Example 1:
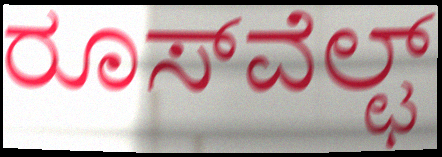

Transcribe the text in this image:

ರೂಸ್‍ವೆಲ್ಟ್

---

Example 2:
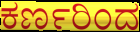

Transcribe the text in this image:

ಕರ್ಣರಿಂದ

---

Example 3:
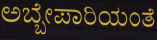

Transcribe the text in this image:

ಅಬ್ಬೇಪಾರಿಯಂತೆ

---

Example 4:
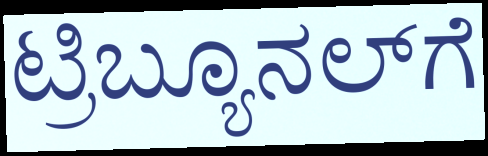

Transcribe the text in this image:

ಟ್ರಿಬ್ಯೂನಲ್‌ಗೆ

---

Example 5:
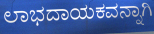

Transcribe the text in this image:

ಲಾಭದಾಯಕವನ್ನಾಗಿ